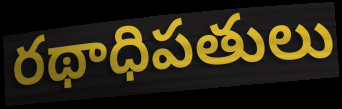
రథాధిపతులు